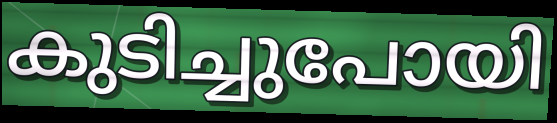
കുടിച്ചുപോയി